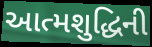
આત્મશુદ્ધિની